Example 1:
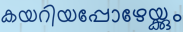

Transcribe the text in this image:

കയറിയപ്പോഴേയ്ക്കും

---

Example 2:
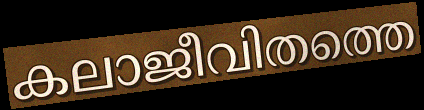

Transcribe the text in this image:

കലാജീവിതത്തെ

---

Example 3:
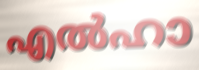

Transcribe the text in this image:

എൽഹാ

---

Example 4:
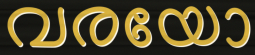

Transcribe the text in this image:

വരയോ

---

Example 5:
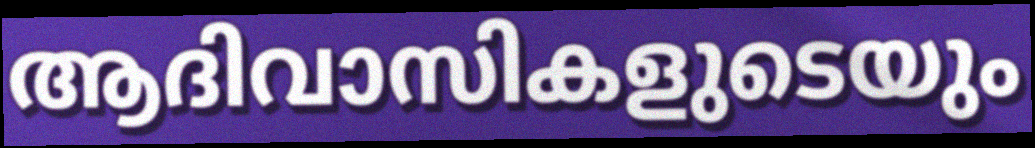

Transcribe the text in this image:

ആദിവാസികളുടെയും